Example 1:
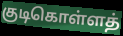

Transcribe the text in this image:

குடிகொள்ளத்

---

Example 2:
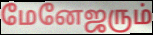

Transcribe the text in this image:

மேனேஜரும்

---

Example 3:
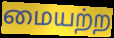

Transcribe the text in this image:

மையற்ற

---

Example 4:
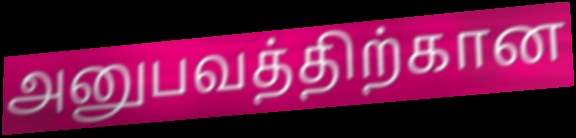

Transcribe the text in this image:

அனுபவத்திற்கான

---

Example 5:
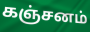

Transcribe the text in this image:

கஞ்சனம்